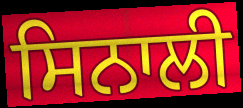
ਸਿਨਾਲੀ